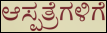
ಆಸ್ಪತ್ರೆಗಳಿಗೆ